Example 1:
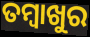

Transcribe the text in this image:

ତମ୍ବାଖୁର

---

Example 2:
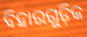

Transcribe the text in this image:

ବିହାରଗୁଡ଼ିକ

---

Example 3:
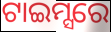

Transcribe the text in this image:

ଟାଇମ୍ସରେ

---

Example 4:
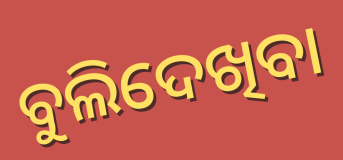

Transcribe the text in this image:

ବୁଲିଦେଖିବା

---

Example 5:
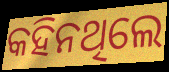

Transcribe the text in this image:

କହିନଥିଲେ